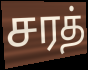
சரத்